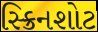
સ્ક્રિનશોટ